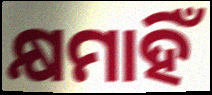
କ୍ଷମାହିଁ